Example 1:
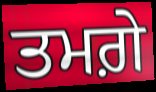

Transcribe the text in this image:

ਤਮਗ਼ੇ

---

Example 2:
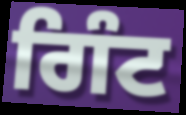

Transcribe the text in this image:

ਗਿੰਟ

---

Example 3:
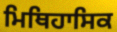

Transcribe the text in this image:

ਮਿਥਿਹਾਸਿਕ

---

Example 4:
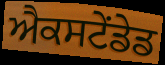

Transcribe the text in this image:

ਐਕਸਟੇਂਡੇਡ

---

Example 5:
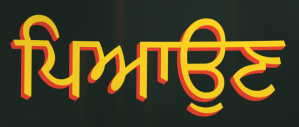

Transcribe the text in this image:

ਪਿਆਉਣ